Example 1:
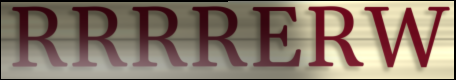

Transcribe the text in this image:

RRRRERW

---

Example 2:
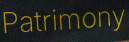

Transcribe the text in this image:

Patrimony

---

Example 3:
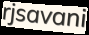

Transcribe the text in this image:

rjsavani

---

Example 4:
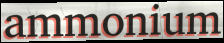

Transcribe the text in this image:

ammonium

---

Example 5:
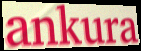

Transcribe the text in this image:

ankura